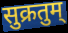
सुक्रतुम्